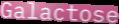
Galactose